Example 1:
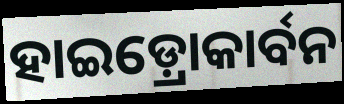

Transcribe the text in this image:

ହାଇଡ଼୍ରୋକାର୍ବନ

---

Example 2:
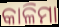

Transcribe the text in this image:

କାଳିମା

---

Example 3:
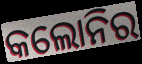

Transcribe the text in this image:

କଲୋନିର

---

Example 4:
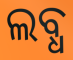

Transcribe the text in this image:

ଲବ୍ଧ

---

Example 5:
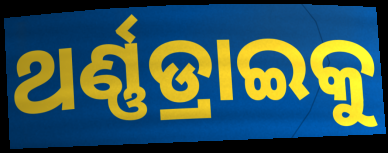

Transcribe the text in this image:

ଥର୍ଣ୍ଣଡ୍ରାଇକୁ